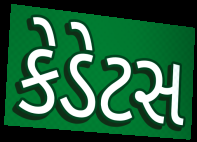
કેડેટસ